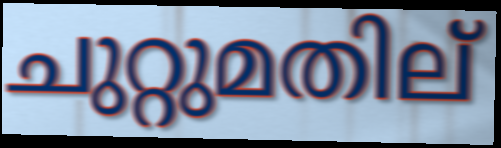
ചുറ്റുമതില്